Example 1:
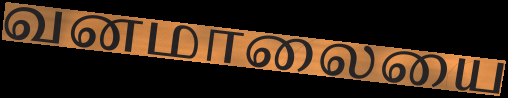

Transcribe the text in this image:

வனமாலையை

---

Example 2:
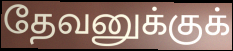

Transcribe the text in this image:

தேவனுக்குக்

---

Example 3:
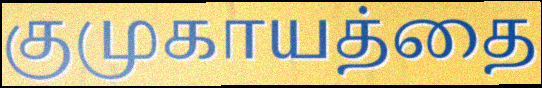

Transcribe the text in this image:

குமுகாயத்தை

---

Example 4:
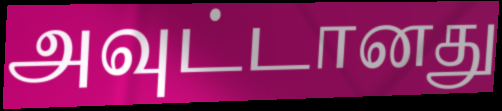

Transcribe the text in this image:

அவுட்டானது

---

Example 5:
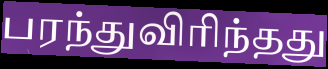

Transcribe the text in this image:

பரந்துவிரிந்தது